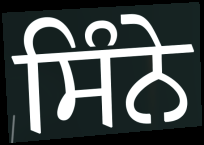
ਸਿੰਨੇ